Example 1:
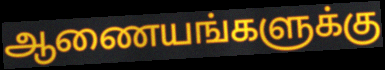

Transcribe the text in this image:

ஆணையங்களுக்கு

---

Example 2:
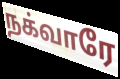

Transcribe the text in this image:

நக்வாரே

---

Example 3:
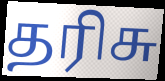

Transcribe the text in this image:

தரிசு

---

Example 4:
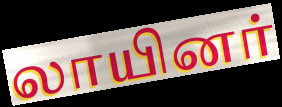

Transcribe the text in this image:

லாயினர்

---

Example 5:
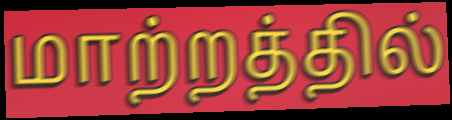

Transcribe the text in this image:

மாற்றத்தில்